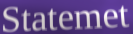
Statemet